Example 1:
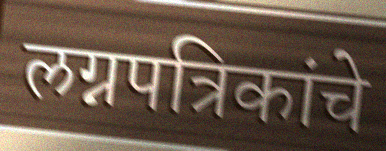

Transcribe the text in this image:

लग्नपत्रिकांचे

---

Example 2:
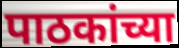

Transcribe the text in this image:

पाठकांच्या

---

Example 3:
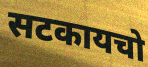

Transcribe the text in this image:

सटकायचो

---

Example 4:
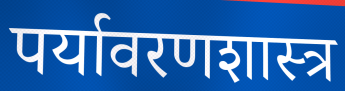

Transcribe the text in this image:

पर्यावरणशास्त्र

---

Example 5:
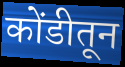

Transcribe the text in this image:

कोंडीतून